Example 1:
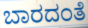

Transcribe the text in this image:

ಬಾರದಂತೆ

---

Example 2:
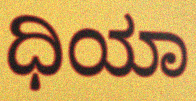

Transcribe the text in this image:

ಧಿಯಾ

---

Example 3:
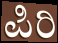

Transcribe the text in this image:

ಪಿರಿ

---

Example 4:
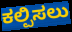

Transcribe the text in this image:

ಕಲ್ಪಿಸಲು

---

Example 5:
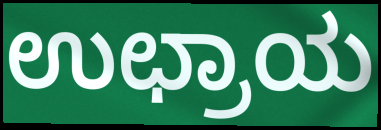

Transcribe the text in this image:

ಉಛ್ರಾಯ